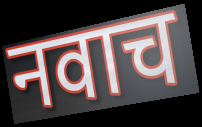
नवाच